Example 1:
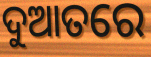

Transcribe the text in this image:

ଦୁଆତରେ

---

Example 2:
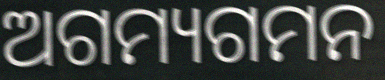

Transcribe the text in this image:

ଅଗମ୍ୟଗମନ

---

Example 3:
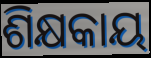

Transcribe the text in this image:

ଶିକ୍ଷକାୟ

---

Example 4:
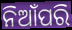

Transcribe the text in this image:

ନିଆଁପରି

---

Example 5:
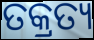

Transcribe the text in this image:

ତକ୍ରତ୍ୟ